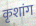
कृशांग